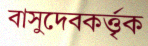
বাসুদেবকর্ত্তৃক